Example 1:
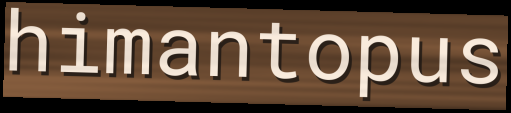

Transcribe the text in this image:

himantopus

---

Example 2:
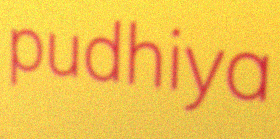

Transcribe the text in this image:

pudhiya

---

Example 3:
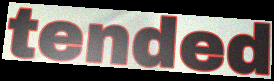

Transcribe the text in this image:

tended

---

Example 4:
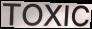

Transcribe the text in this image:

TOXIC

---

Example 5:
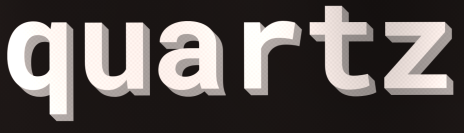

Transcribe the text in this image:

quartz